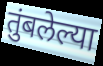
तुंबलेल्या